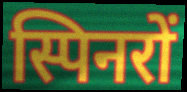
स्पिनरों